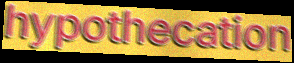
hypothecation